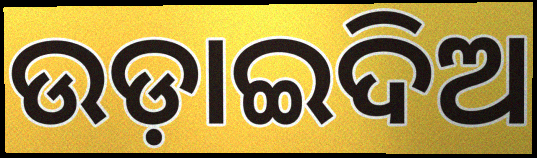
ଉଡ଼ାଇଦିଅ